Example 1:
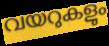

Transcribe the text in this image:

വയറുകളും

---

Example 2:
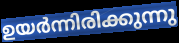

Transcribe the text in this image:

ഉയർന്നിരിക്കുന്നു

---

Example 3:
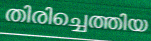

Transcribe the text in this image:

തിരിച്ചെത്തിയ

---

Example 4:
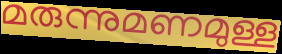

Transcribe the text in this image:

മരുന്നുമണമുള്ള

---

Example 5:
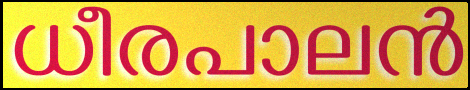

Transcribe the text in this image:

ധീരപാലൻ